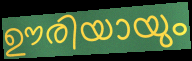
ഊരിയായും